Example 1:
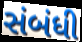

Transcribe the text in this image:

સંબંધી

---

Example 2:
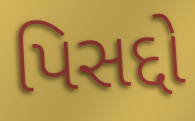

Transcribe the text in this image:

પિસદ્દો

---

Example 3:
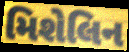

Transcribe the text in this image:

મિશેલિન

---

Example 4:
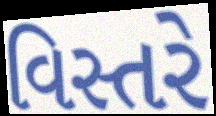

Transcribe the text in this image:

વિસ્તરે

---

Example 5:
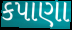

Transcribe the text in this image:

કપાણા